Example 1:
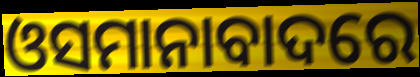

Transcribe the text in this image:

ଓସମାନାବାଦରେ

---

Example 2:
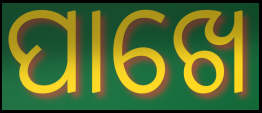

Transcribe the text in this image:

ପାଖେ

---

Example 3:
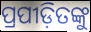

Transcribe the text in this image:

ପ୍ରପୀଡ଼ିତଙ୍କୁ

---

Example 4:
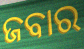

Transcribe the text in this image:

ଜବାର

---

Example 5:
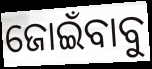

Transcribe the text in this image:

ଜୋଇଁବାବୁ